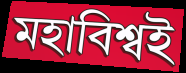
মহাবিশ্বই